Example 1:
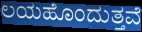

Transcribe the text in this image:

ಲಯಹೊಂದುತ್ತವೆ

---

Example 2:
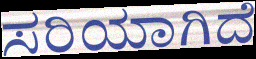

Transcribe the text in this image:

ಸರಿಯಾಗಿದೆ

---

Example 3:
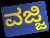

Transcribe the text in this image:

ವಜ್ಜಿ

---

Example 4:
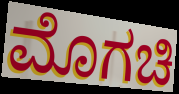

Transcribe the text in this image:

ಮೊಗಚಿ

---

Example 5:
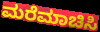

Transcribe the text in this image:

ಮರೆಮಾಚಿಸಿ